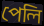
পেলি